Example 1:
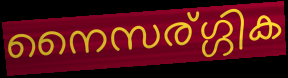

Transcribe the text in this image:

നൈസര്ഗ്ഗിക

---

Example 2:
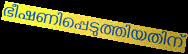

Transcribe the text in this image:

ഭീഷണിപ്പെടുത്തിയതിന്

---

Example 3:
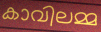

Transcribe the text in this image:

കാവിലമ്മ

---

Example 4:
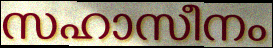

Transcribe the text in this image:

സഹാസീനം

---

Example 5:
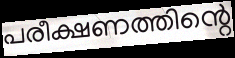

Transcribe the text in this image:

പരീക്ഷണത്തിന്റെ